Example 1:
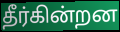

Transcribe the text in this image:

தீர்கின்றன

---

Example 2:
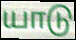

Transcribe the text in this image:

யாடு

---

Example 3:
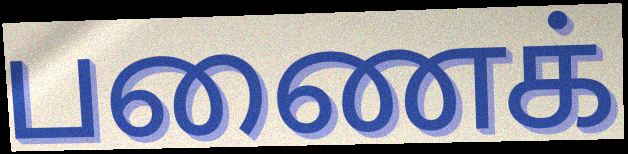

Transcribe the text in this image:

பணைக்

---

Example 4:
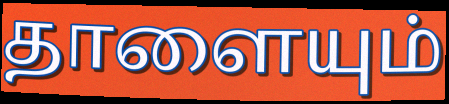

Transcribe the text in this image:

தாளையும்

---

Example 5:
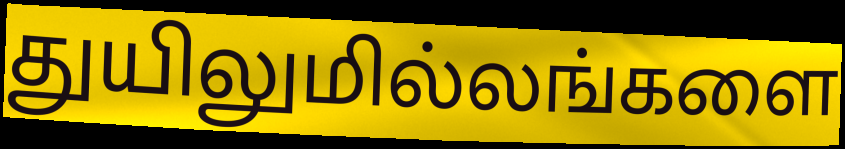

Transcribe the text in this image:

துயிலுமில்லங்களை